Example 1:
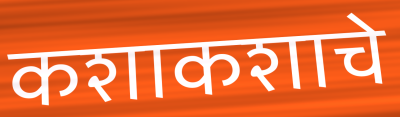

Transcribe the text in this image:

कशाकशाचे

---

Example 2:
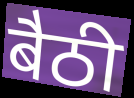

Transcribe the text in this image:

बैठी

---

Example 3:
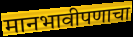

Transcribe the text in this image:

मानभावीपणाचा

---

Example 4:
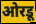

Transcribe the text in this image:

ओरडू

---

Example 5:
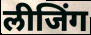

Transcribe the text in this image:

लीजिंग